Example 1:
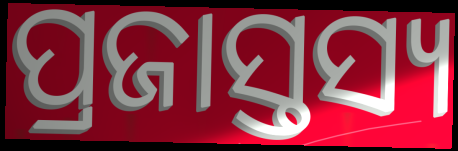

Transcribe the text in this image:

ପ୍ରଜାସ୍ତସ୍ୟ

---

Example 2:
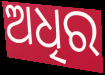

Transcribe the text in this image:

ଅଧିର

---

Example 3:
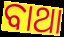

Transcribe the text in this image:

ବାଥା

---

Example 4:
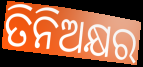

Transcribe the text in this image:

ତିନିଅକ୍ଷର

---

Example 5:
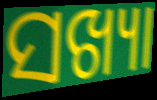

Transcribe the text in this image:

ସଖ୍ୟା